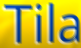
Tila